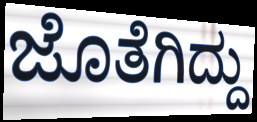
ಜೊತೆಗಿದ್ದು